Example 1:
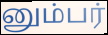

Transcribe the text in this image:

னும்பர்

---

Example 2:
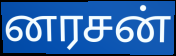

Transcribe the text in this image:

னரசன்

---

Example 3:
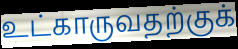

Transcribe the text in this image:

உட்காருவதற்குக்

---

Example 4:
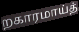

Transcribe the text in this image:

றகாரமாய்த்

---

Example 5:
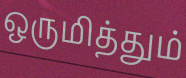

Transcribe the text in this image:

ஒருமித்தும்